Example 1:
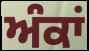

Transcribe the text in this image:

ਅੰਕਾਂ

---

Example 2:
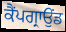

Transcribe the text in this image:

ਕੈਂਪਗ੍ਰਾਉਂਡ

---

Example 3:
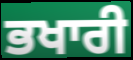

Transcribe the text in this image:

ਭਖਾਰੀ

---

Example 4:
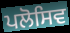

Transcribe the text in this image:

ਪਲੋਸਿਵ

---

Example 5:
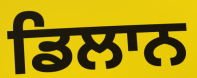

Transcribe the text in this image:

ਡਿਲਾਨ